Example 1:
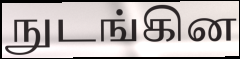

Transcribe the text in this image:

நுடங்கின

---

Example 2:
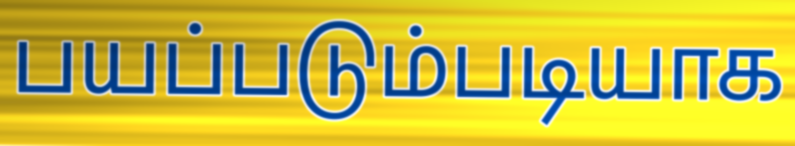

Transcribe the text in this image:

பயப்படும்படியாக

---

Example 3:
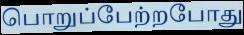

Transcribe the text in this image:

பொறுப்பேற்றபோது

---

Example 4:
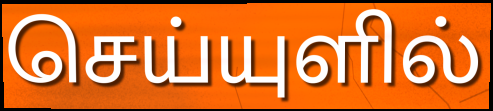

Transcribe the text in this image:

செய்யுளில்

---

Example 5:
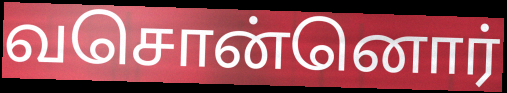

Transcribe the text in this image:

வசொன்னொர்